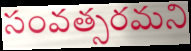
సంవత్సరమని